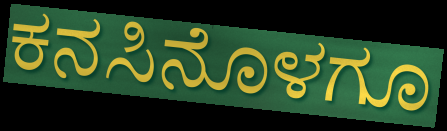
ಕನಸಿನೊಳಗೂ